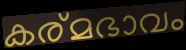
കര്മഭാവം